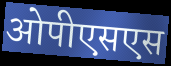
ओपीएसएस